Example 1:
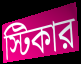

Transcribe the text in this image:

স্টিকার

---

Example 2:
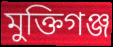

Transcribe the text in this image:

মুক্তিগঞ্জ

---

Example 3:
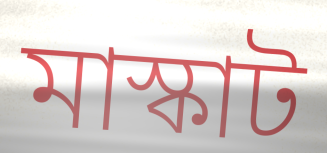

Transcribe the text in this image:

মাস্কাট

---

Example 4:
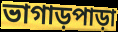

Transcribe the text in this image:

ভাগাড়পাড়া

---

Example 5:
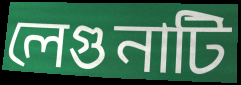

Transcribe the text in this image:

লেগুনাটি